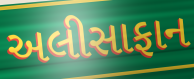
અલીસાફાન